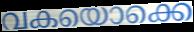
വകയൊക്കെ